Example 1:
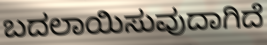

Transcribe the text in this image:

ಬದಲಾಯಿಸುವುದಾಗಿದೆ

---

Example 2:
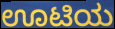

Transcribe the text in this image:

ಊಟಿಯ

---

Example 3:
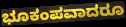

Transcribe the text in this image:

ಭೂಕಂಪವಾದರೂ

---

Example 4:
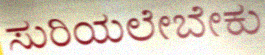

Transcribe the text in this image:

ಸುರಿಯಲೇಬೇಕು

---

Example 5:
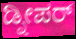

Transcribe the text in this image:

ಡ್ನೀಪರ್